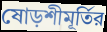
ষোড়শীমূর্তির